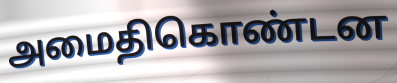
அமைதிகொண்டன